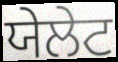
ਯੇਲੇਟ